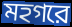
মহগরে